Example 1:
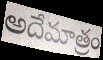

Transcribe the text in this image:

అదేమాత్రం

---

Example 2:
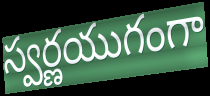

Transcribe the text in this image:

స్వర్ణయుగంగా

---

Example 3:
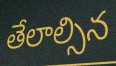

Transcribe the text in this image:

తేలాల్సిన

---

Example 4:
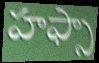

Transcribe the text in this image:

హఫ్సా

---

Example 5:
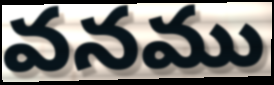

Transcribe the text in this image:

వనము